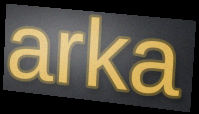
arka